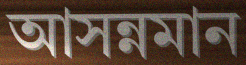
আসন্নমান